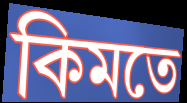
কিমতে